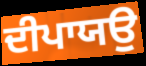
ਦੀਪਾਯਉ